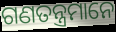
ଗଣତନ୍ତ୍ରମାନେ